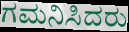
ಗಮನಿಸಿದರು